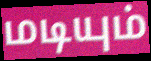
மடியும்